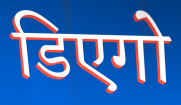
डिएगो